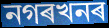
নগৰখনৰ